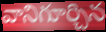
వానిగూర్చిన